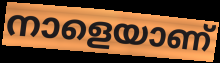
നാളെയാണ്